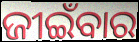
ଜୀଇଁବାର